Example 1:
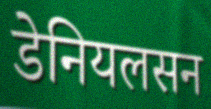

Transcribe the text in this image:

डेनियलसन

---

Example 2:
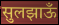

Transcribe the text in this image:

सुलझाऊँ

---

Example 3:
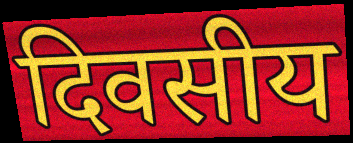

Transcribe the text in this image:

दिवसीय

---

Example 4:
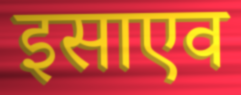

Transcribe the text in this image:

इसाएव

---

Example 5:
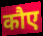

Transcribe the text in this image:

कौए